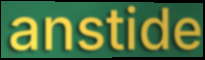
anstide